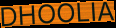
DHOOLIA